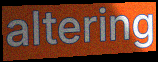
altering